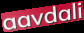
aavdali